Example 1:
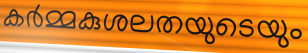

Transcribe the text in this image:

കർമ്മകുശലതയുടെയും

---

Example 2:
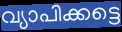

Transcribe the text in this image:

വ്യാപിക്കട്ടെ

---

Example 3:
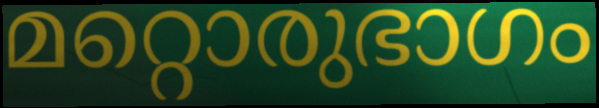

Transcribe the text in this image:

മറ്റൊരുഭാഗം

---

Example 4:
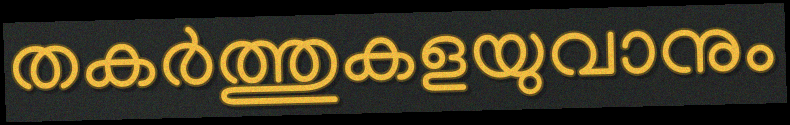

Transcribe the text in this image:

തകർത്തുകളയുവാനും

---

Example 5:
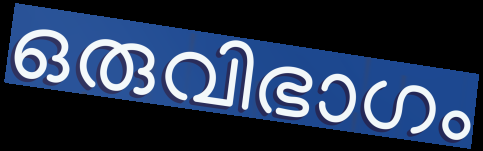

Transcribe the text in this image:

ഒരുവിഭാഗം